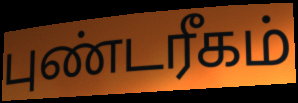
புண்டரீகம்